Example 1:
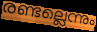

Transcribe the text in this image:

രണ്ടല്ലെന്നും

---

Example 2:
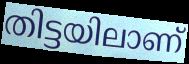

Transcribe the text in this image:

തിട്ടയിലാണ്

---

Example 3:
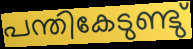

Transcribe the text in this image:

പന്തികേടുണ്ടു്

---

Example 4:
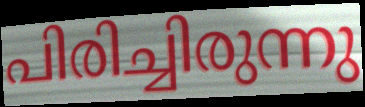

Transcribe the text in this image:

പിരിച്ചിരുന്നു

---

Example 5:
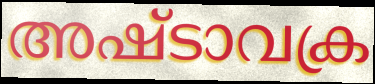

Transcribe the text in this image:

അഷ്ടാവക്ര